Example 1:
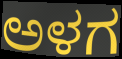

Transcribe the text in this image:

ಅಳಗ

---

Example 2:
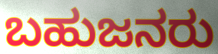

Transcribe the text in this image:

ಬಹುಜನರು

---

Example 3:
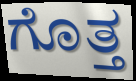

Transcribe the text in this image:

ಗೊತ್ತ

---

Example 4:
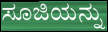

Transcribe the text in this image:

ಸೂಜಿಯನ್ನು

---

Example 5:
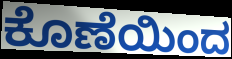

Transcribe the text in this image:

ಕೊಣೆಯಿಂದ